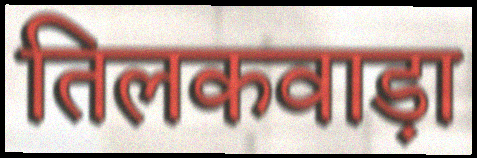
तिलकवाड़ा